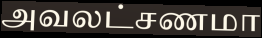
அவலட்சணமா